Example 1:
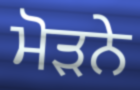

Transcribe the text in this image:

ਮੋੜਨੇ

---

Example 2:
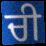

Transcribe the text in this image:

ਚੀ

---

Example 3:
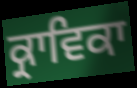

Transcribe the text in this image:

ਕ੍ਰਾਵਿਕਾ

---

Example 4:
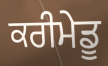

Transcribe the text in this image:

ਕਰੀਮੇਡੂ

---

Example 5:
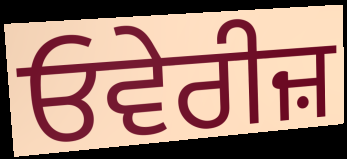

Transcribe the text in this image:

ਓਵੇਰੀਜ਼